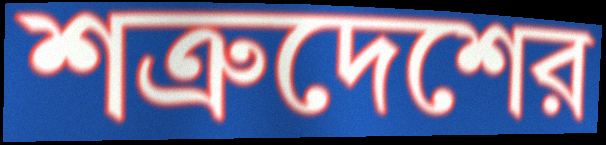
শত্রুদেশের